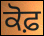
ਕੋਫ਼